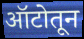
ऑटोतून